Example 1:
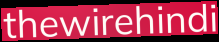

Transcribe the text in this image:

thewirehindi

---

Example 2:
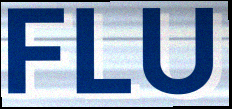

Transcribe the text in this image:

FLU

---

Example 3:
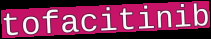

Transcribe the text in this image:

tofacitinib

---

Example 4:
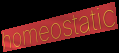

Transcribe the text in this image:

homeostatic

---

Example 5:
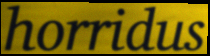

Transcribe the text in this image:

horridus